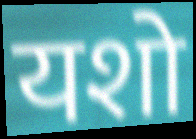
यशो